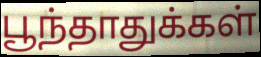
பூந்தாதுக்கள்